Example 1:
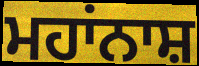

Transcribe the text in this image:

ਮਹਾਂਨਾਸ਼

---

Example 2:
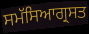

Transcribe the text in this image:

ਸਮੱਸਿਆਗ੍ਰਸਤ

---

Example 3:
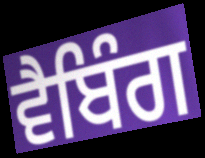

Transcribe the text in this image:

ਵੈਬਿੰਗ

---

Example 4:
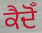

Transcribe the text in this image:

ਕੈਦੋਁ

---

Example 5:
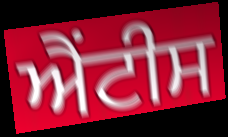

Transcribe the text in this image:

ਐਂਟੀਸ